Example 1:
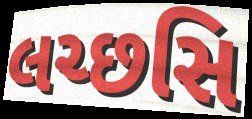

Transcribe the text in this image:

લચ્છસિ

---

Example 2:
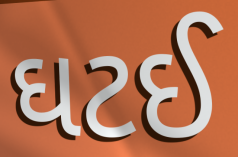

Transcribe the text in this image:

ઘટઈ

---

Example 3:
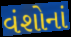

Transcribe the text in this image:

વંશોનાં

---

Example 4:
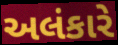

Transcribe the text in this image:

અલંકારે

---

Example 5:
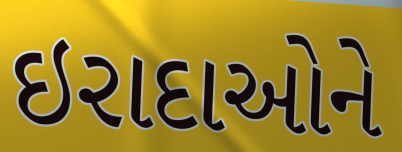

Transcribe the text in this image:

ઇરાદાઓને